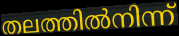
തലത്തിൽനിന്ന്